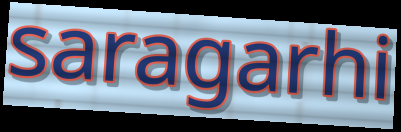
saragarhi